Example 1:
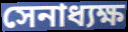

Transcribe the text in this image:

সেনাধ্যক্ষ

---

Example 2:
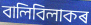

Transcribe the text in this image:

বালিবিলাকৰ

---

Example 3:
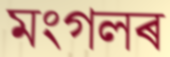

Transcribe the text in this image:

মংগলৰ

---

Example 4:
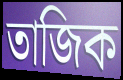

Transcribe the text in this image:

তাজিক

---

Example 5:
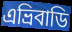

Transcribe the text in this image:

এভ্ৰিবাডি